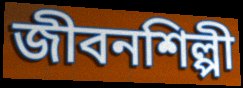
জীবনশিল্পী